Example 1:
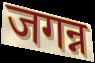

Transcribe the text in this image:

जगन्न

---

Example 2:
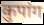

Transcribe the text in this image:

कुपांग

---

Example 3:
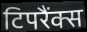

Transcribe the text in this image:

टिपरैंक्स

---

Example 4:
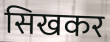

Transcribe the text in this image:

सिखकर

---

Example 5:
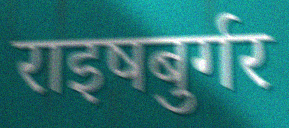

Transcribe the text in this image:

राइषबुर्गर